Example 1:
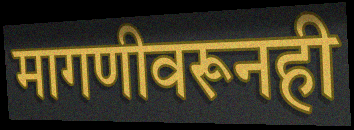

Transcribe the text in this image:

मागणीवरूनही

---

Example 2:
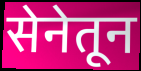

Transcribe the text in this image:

सेनेतून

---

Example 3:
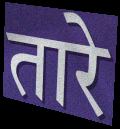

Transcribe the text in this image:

तारे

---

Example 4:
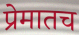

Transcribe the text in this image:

प्रेमातच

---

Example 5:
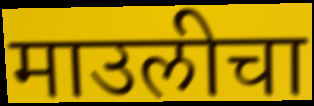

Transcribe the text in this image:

माउलीचा